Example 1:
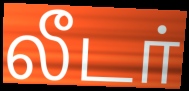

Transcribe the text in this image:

லீடர்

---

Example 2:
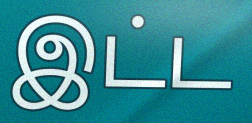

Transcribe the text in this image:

இட்ட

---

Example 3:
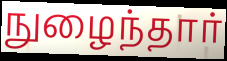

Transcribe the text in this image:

நுழைந்தார்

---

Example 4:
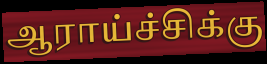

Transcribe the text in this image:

ஆராய்ச்சிக்கு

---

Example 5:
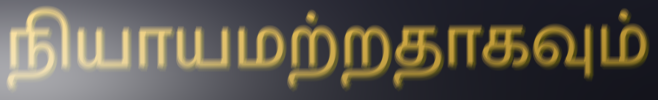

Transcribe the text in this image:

நியாயமற்றதாகவும்